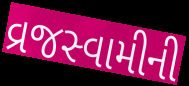
વ્રજસ્વામીની